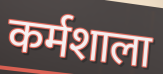
कर्मशाला